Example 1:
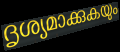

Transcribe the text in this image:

ദൃശ്യമാക്കുകയും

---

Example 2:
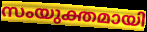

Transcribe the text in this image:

സംയുക്തമായി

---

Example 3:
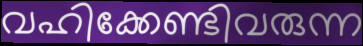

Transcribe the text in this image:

വഹിക്കേണ്ടിവരുന്ന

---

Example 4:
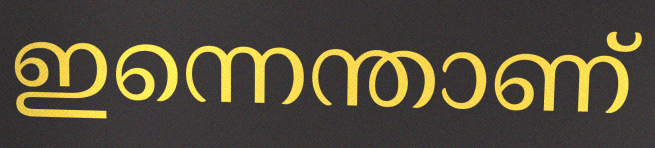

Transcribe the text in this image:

ഇന്നെന്താണ്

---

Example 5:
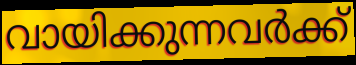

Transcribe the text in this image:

വായിക്കുന്നവർക്ക്